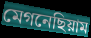
মেগনেছিয়াম